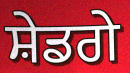
ਸ਼ੇਡਗੇ